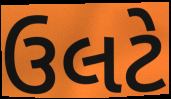
ઉલટે